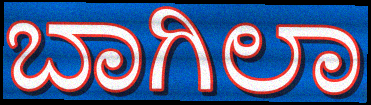
ಬಾಗಿಲಾ